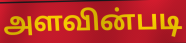
அளவின்படி